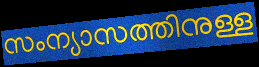
സംന്യാസത്തിനുള്ള